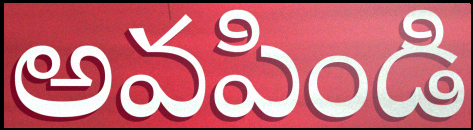
అవపిండి